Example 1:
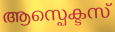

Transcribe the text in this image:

ആസ്പെക്ടസ്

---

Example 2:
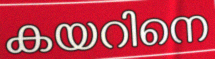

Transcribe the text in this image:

കയറിനെ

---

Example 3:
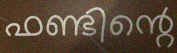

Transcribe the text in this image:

ഫണ്ടിന്റെ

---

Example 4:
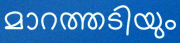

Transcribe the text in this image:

മാറത്തടിയും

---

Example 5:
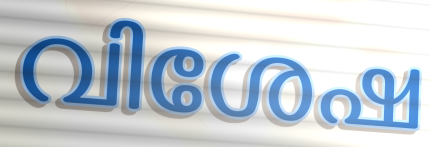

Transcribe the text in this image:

വിശേഷ